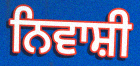
ਨਿਵਾਸ਼ੀ